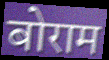
बोराम